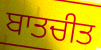
ਬਾਤਚੀਤ